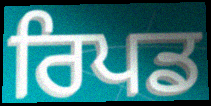
ਰਿਪਡ